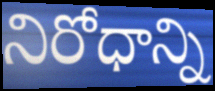
నిరోధాన్ని